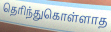
தெரிந்துகொள்ளாத